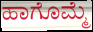
ಹಾಗೊಮ್ಮೆ